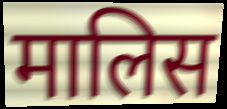
मालिस